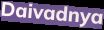
Daivadnya